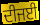
ਦੀਜਈ